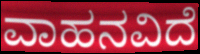
ವಾಹನವಿದೆ